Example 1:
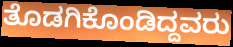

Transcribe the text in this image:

ತೊಡಗಿಕೊಂಡಿದ್ದವರು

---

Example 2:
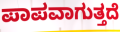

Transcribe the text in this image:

ಪಾಪವಾಗುತ್ತದೆ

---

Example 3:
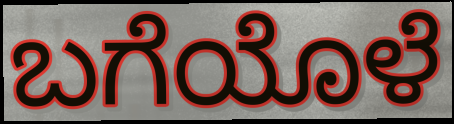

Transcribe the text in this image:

ಬಗೆಯೊಳೆ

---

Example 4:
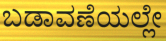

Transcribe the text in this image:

ಬಡಾವಣೆಯಲ್ಲೇ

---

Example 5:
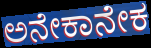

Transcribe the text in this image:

ಅನೇಕಾನೇಕ